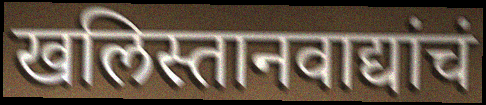
खलिस्तानवाद्यांचं